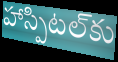
హాస్పిటల్‌కు